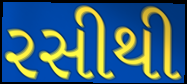
રસીથી